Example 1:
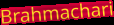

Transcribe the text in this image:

Brahmachari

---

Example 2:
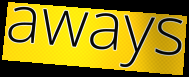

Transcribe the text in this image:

aways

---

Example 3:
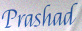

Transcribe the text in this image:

Prashad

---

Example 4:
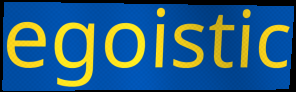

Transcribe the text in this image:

egoistic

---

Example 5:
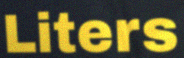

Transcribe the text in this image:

Liters